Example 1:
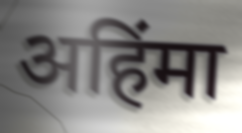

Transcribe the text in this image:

अहिंमा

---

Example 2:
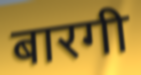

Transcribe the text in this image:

बारगी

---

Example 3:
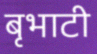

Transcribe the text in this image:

बृभाटी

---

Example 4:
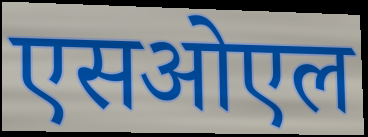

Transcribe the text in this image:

एसओएल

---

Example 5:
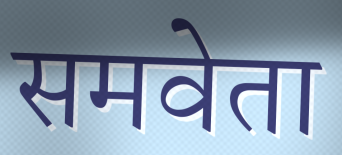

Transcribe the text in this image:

समवेता